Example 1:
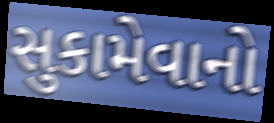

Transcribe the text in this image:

સુકામેવાનો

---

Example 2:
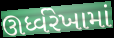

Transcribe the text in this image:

ઊર્ધ્વરેખામાં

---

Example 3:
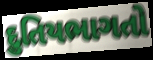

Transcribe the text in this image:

દુતિયભાગતો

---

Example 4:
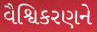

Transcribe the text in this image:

વૈશ્વિકરણને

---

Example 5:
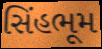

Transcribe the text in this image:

સિંહભૂમ